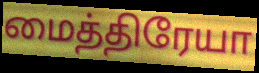
மைத்திரேயா